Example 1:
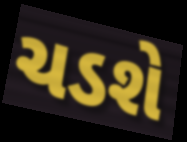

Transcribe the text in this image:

ચડશે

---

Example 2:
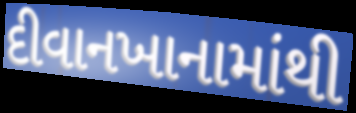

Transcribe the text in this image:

દીવાનખાનામાંથી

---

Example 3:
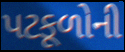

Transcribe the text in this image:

પટકૂળોની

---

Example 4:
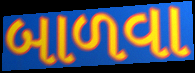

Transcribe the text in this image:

બાળવા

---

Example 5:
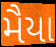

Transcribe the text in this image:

મૈયા